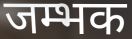
जम्भक